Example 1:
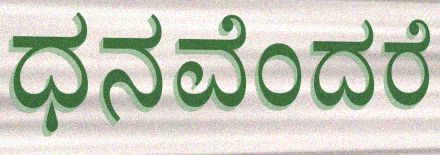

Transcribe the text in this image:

ಧನವೆಂದರೆ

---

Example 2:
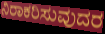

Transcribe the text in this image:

ನಿರಾಕರಿಸುವುದರ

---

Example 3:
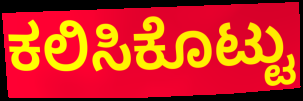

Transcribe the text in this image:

ಕಲಿಸಿಕೊಟ್ಟು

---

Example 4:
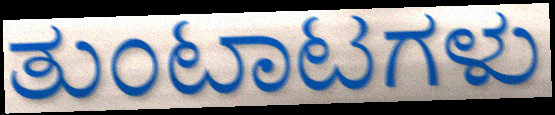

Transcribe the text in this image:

ತುಂಟಾಟಗಳು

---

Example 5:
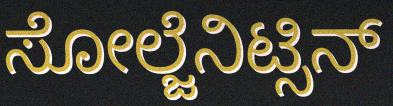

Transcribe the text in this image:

ಸೋಲ್ಜೆನಿಟ್ಸಿನ್